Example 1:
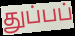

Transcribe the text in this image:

துப்பப்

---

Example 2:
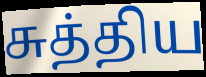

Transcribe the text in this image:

சுத்திய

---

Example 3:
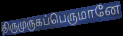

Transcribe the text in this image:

திருமுருகப்பெருமானே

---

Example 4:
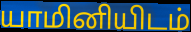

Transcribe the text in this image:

யாமினியிடம்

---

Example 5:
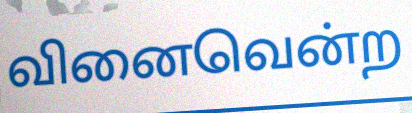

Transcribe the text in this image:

வினைவென்ற